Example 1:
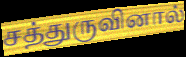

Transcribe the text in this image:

சத்துருவினால்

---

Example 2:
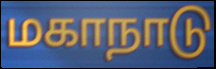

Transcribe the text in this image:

மகாநாடு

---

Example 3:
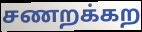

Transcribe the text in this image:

சணறக்கற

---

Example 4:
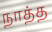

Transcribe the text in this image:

நாத்த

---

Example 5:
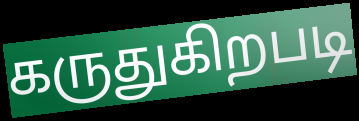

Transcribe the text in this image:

கருதுகிறபடி